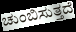
ಚುಂಬಿಸುತ್ತದೆ